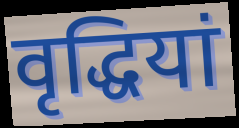
वृद्धियां